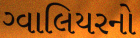
ગ્વાલિયરનો